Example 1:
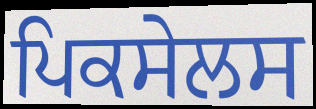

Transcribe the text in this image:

ਪਿਕਸੇਲਸ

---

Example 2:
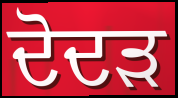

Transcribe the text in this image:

ਦੋਦੜ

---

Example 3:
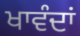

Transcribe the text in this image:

ਖਾਵੰਦਾਂ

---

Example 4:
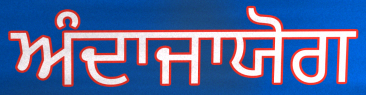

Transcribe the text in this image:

ਅੰਦਾਜਾਯੋਗ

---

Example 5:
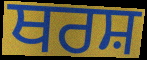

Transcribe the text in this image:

ਥਰਸ਼